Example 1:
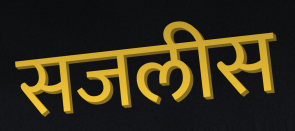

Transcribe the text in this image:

सजलीस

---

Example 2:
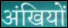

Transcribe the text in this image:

अंखियों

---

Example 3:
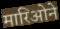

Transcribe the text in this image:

मारिओने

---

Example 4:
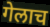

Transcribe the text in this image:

गेलाच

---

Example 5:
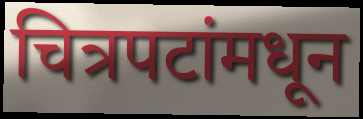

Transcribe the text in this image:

चित्रपटांमधून